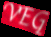
VEG